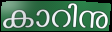
കാറിനു